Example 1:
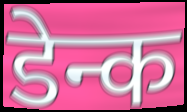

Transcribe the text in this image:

डेन्क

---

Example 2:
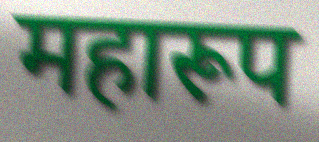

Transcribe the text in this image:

महारूप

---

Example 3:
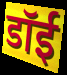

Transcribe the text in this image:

डॉई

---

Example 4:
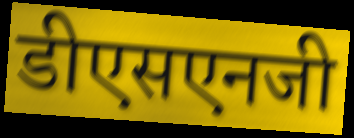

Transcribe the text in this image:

डीएसएनजी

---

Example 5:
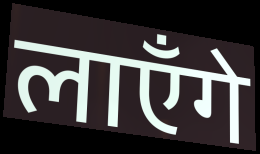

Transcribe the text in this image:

लाएँगे